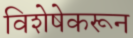
विशेषेकरून